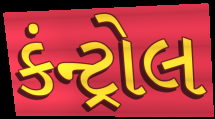
કંન્ટ્રોલ